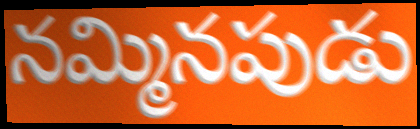
నమ్మినపుడు